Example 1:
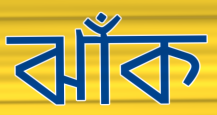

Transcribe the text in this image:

ঝাঁক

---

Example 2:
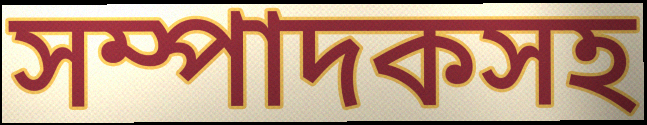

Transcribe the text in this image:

সম্পাদকসহ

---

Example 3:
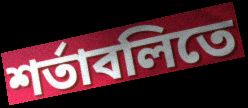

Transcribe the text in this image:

শর্তাবলিতে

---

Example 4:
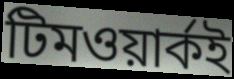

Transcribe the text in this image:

টিমওয়ার্কই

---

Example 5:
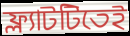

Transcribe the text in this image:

ফ্ল্যাটটিতেই